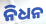
ନିଧନ